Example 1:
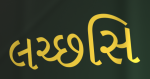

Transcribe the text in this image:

લચ્છસિ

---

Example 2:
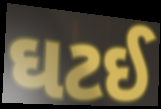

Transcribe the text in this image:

ઘટઈ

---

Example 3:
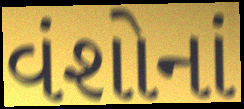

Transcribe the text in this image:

વંશોનાં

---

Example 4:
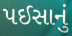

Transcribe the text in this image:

પઈસાનું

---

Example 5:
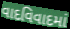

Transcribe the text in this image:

વાદવિવાદમાં